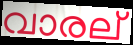
വാരല്